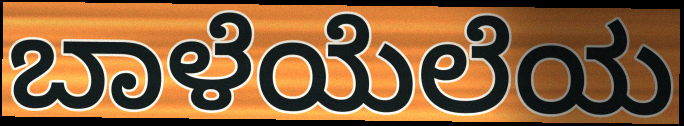
ಬಾಳೆಯೆಲೆಯ